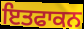
ਇਤਫਾਕਨ